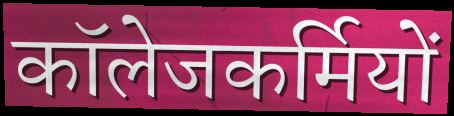
कॉलेजकर्मियों